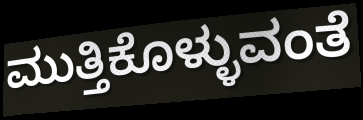
ಮುತ್ತಿಕೊಳ್ಳುವಂತೆ